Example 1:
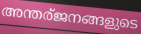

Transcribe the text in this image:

അന്തര്ജനങ്ങളുടെ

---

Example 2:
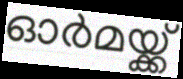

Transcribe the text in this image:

ഓർമയ്ക്ക്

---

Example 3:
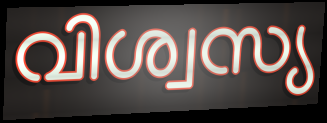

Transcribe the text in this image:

വിശ്വസ്യ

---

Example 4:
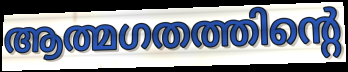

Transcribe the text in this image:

ആത്മഗതത്തിന്റെ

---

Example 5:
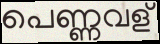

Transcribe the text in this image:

പെണ്ണവള്